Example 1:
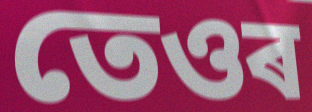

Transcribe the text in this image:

তেওৰ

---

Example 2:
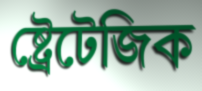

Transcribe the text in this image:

ষ্ট্ৰেটেজিক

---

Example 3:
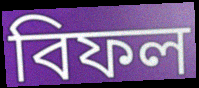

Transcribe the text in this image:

বিফল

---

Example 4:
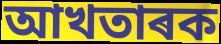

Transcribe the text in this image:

আখতাৰক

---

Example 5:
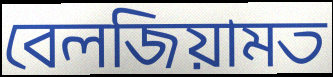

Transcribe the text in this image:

বেলজিয়ামত